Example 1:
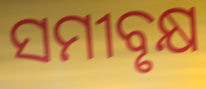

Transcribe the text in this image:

ସମୀବୃକ୍ଷ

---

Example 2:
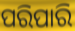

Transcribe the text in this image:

ପରିପାରି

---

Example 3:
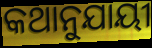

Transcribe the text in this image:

କଥାନୁଯାୟୀ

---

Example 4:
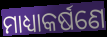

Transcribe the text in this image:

ମାଧ୍ୟାକର୍ଷଣେ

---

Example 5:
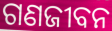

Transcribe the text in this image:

ଗଣଜୀବନ